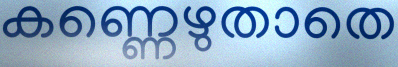
കണ്ണെഴുതാതെ